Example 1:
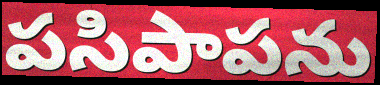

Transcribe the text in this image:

పసిపాపను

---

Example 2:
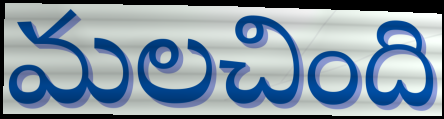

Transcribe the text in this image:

మలచింది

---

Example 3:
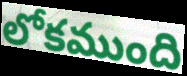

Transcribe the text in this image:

లోకముంది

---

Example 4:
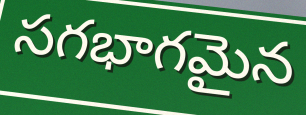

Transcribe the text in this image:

సగభాగమైన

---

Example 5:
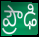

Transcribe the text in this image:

ప్రౌఢి